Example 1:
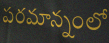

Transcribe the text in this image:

పరమాన్నంలో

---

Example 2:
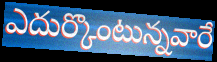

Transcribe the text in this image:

ఎదుర్కొంటున్నవారే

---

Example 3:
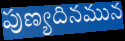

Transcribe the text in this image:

పుణ్యదినమున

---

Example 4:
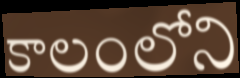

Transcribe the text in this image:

కాలంలోని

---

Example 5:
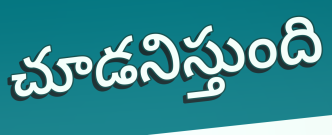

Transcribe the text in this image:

చూడనిస్తుంది